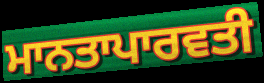
ਮਾਨਤਾਪਾਰਵਤੀ